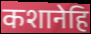
कशानेहि